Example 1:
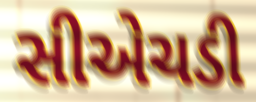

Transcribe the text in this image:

સીએચડી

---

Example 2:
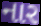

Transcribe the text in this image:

નાર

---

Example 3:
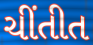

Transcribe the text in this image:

ચીંતીત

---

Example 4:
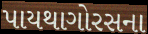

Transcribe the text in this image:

પાયથાગોરસના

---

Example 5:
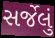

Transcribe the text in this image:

સર્જેલું